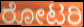
ರೋಟರಿ